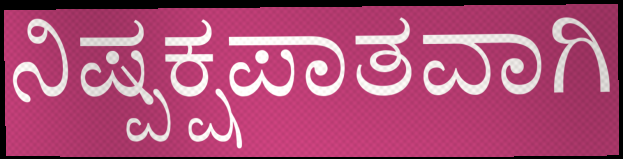
ನಿಷ್ಪಕ್ಷಪಾತವಾಗಿ